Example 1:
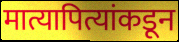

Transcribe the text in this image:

मात्यापित्यांकडून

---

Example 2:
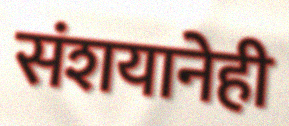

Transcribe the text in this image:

संशयानेही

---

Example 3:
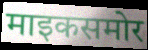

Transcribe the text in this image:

माइकसमोर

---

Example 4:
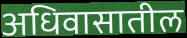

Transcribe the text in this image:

अधिवासातील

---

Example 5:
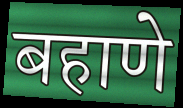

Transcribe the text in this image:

बहाणे